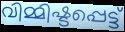
വിമ്മിഷ്ടപ്പെട്ട്